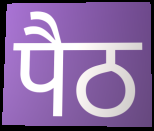
पैठ